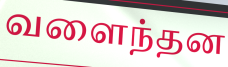
வளைந்தன